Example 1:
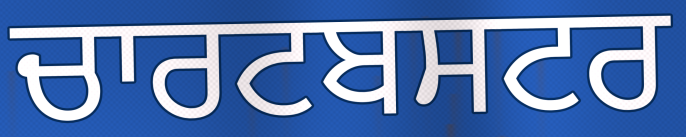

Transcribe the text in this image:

ਚਾਰਟਬਸਟਰ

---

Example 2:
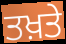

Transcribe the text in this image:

ਤਖ਼ਤੇ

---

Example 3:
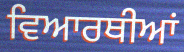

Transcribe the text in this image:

ਵਿਆਰਥੀਆਂ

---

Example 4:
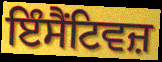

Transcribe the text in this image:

ਇੰਸੈਂਟਿਵਜ਼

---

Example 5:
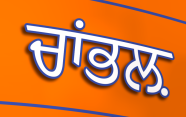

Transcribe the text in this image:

ਚਾਂਭਲ਼